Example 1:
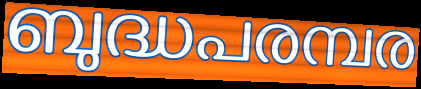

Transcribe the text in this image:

ബുദ്ധപരമ്പര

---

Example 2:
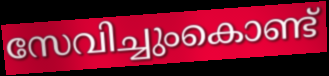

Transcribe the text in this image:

സേവിച്ചുംകൊണ്ട്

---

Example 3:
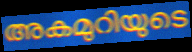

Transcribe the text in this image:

അകമുറിയുടെ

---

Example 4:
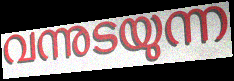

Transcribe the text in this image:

വന്നുടയുന്ന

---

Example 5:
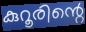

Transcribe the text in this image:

കുറൂരിന്റെ